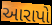
આરાપો